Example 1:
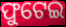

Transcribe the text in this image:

ଫୁଟେଇ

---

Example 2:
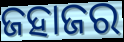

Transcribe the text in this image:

ଜହାଜର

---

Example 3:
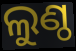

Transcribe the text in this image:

ଲୁଣ୍ଠ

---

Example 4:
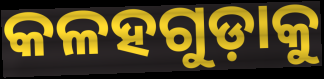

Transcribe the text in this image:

କଳହଗୁଡ଼ାକୁ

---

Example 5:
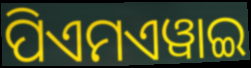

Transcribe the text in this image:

ପିଏମଏୱାଇ